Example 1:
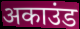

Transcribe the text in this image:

अकाउंड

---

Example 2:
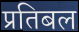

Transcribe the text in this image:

प्रतिबल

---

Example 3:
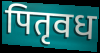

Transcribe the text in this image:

पितृवध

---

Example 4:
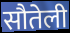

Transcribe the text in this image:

सौतेली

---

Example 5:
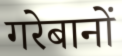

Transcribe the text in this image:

गरेबानों